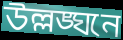
উল্লঙ্ঘনে